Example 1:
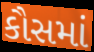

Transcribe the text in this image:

કૌસમાં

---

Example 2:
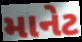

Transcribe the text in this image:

માનેટ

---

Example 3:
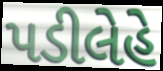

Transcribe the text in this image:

પડીલેહે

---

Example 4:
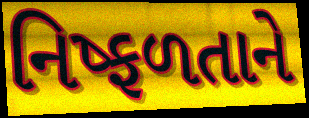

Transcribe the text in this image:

નિષ્ફળતાને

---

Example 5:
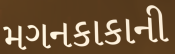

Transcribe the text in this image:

મગનકાકાની